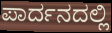
ಪಾರ್ದನದಲ್ಲಿ